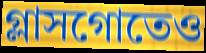
গ্লাসগোতেও